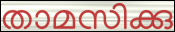
താമസിക്കു